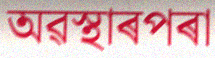
অৱস্থাৰপৰা